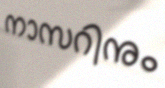
നാസറിനും